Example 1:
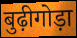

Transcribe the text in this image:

बुढ़ीगोड़ा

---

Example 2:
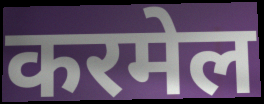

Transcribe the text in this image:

करमेल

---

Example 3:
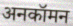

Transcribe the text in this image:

अनकॉमन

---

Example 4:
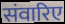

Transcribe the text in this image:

संवारिए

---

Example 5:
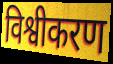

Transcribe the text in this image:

विश्वीकरण